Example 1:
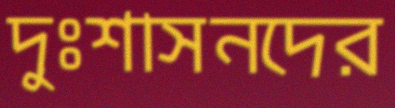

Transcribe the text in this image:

দুঃশাসনদের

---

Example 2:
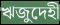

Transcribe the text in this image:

ঋজুদেহী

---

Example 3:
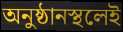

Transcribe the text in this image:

অনুষ্ঠানস্থলেই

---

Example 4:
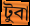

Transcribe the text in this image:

টুবা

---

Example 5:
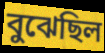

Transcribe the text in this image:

বুঝেছিল